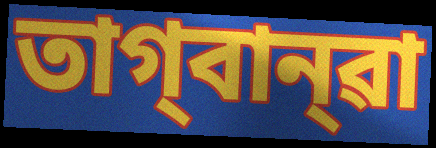
তাগ্‌বান্‌ৱা